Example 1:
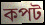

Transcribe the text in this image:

কপট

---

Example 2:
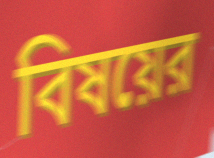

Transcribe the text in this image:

বিষয়ের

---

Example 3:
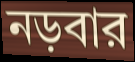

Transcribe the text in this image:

নড়বার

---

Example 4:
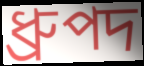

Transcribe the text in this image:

ধ্রুপদ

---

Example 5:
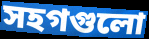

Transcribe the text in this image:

সহগগুলো